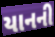
યાનની